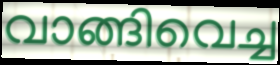
വാങ്ങിവെച്ച